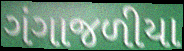
ગંગાજળીયા